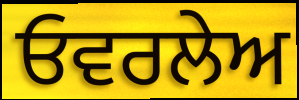
ਓਵਰਲੇਅ